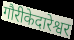
गौरीकेदारेश्वर